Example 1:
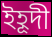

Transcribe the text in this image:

ইহূদী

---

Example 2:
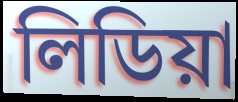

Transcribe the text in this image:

লিডিয়া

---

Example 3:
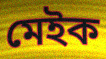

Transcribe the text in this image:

মেইক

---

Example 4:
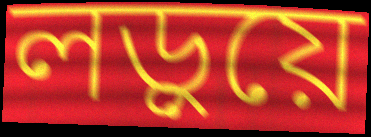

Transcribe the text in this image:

লড়ুয়ে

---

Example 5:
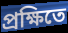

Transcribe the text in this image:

প্রক্ষিতে